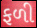
ફળી